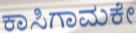
ಕಾಸಿಗಾಮಕೇ